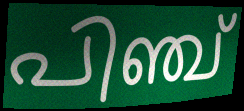
പിഞ്ച്